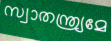
സ്വാതന്ത്ര്യമേ